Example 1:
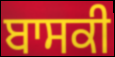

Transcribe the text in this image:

ਬਾਸਕੀ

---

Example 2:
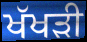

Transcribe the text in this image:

ਖੱਖੜੀ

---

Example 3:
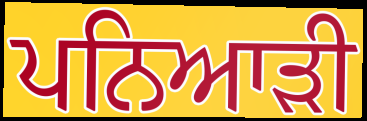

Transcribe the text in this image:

ਪਨਿਆੜੀ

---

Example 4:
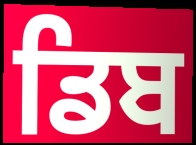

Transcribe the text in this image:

ਡਿਬ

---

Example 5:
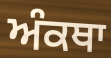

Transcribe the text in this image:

ਅੰਕਥਾ